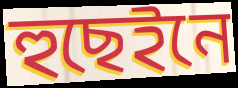
হুছেইনে